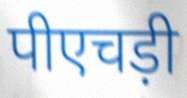
पीएचड़ी